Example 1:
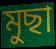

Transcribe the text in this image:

মুছা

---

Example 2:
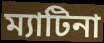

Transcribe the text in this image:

ম্যাটিনা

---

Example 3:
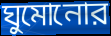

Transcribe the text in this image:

ঘুমোনোর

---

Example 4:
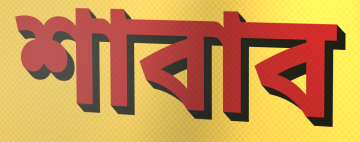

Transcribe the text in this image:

শাবাব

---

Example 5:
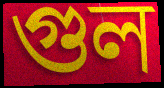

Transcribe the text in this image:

গুল